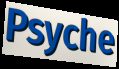
Psyche